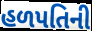
હળપતિની